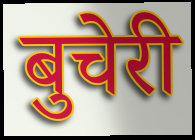
बुचेरी